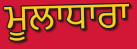
ਮੂਲਾਧਾਰਾ